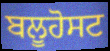
ਬਲੂਹੋਸਟ